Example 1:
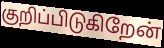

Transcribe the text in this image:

குறிப்பிடுகிறேன்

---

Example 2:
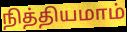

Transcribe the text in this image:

நித்தியமாம்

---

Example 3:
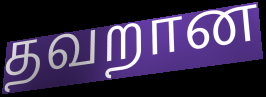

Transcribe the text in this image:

தவறான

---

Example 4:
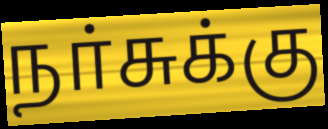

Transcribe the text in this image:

நர்சுக்கு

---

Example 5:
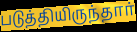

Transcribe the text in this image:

படுத்தியிருந்தார்